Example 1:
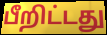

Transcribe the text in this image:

பீறிட்டது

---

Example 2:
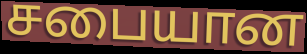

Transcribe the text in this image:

சபையான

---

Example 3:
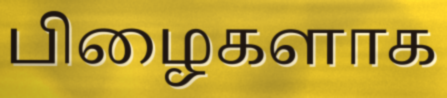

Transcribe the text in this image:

பிழைகளாக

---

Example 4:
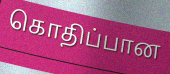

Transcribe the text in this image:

கொதிப்பான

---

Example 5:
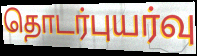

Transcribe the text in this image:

தொடர்புயர்வு